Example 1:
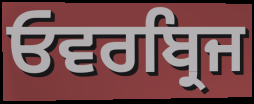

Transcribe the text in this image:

ਓਵਰਬ੍ਰਿਜ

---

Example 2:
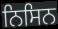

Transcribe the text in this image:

ਨਿਸਿਨ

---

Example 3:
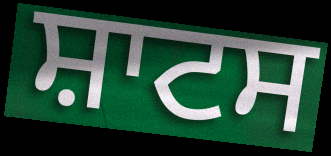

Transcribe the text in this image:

ਸ਼ਾਟਸ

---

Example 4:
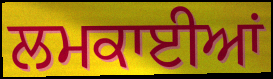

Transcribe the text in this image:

ਲਮਕਾਈਆਂ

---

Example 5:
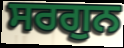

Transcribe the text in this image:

ਸਰਗੁਨ